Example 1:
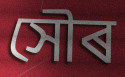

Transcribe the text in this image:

সৌৰ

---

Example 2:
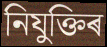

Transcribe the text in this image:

নিযুক্তিৰ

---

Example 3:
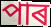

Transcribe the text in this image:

পাৰ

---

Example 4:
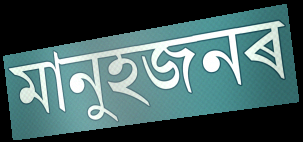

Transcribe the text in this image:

মানুহজনৰ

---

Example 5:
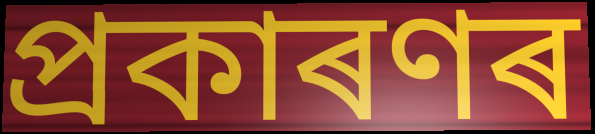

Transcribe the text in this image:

প্ৰকাৰণৰ